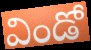
విండో